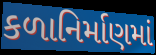
કળાનિર્માણમાં